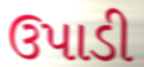
ઉપાડી